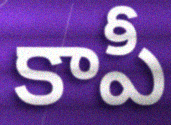
కాపీ